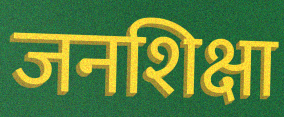
जनशिक्षा